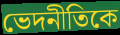
ভেদনীতিকে